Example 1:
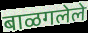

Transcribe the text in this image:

बाळगलेले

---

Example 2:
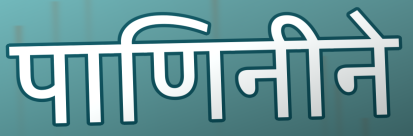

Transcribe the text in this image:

पाणिनीने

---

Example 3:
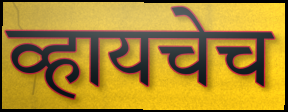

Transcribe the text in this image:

व्हायचेच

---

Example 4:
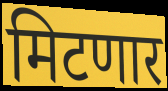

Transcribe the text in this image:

मिटणार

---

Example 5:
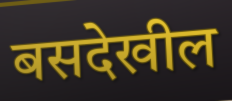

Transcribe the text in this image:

बसदेखील